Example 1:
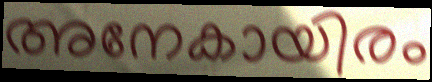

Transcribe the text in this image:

അനേകായിരം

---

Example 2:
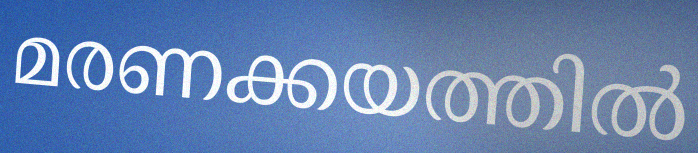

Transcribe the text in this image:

മരണക്കയത്തിൽ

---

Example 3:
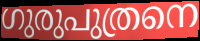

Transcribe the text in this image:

ഗുരുപുത്രനെ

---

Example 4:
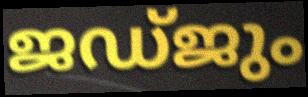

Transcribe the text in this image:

ജഡ്ജും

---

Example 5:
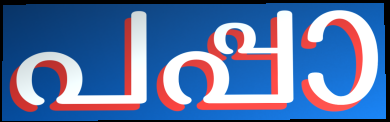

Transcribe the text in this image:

പപ്പാ